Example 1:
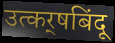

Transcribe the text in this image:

उत्कर्षबिंदू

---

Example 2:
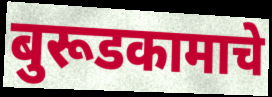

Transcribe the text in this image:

बुरूडकामाचे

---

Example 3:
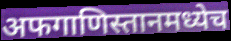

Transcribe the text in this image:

अफगाणिस्तानमध्येच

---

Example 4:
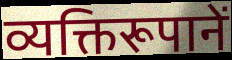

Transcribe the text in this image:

व्यक्तिरूपानें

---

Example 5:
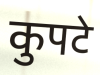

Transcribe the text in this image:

कुपटे